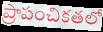
ప్రాపంచికతలో